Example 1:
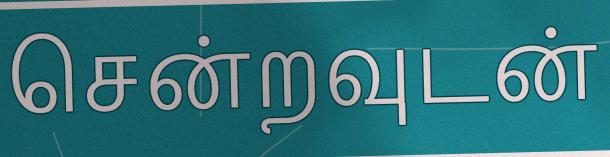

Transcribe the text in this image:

சென்றவுடன்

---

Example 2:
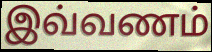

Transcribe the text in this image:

இவ்வணம்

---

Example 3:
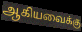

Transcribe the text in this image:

ஆகியவைக்கு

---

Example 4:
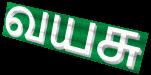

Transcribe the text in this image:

வயசு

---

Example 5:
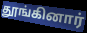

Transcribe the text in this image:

தூங்கினார்